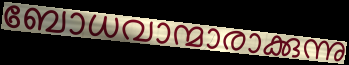
ബോധവാന്മാരാക്കുന്നു